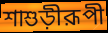
শাশুড়ীরূপী